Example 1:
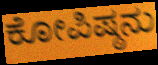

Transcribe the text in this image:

ಕೋಪಿಷ್ಠನು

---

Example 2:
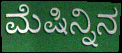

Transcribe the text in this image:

ಮೆಷಿನ್ನಿನ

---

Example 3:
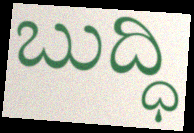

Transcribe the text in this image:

ಬುದ್ಧಿ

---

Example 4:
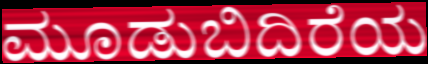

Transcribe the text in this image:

ಮೂಡುಬಿದಿರೆಯ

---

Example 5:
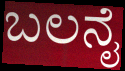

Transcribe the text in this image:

ಬಲನೈ